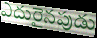
ఎదురైనపుడు